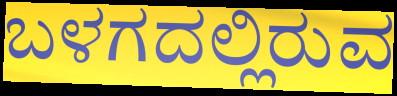
ಬಳಗದಲ್ಲಿರುವ